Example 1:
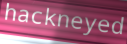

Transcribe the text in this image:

hackneyed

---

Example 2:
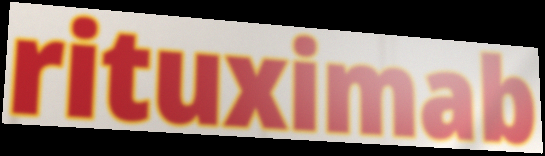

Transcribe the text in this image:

rituximab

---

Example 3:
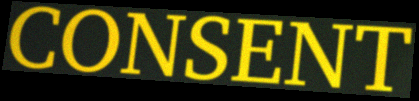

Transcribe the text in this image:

CONSENT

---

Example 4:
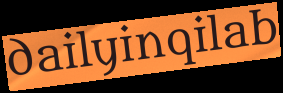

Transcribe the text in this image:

dailyinqilab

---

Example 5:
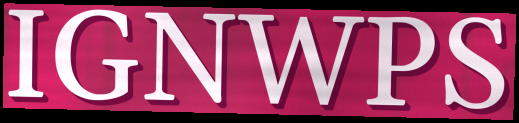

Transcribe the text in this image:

IGNWPS